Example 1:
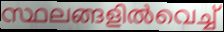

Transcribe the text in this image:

സ്ഥലങ്ങളിൽവെച്ച്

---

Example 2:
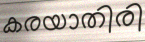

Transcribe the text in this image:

കരയാതിരി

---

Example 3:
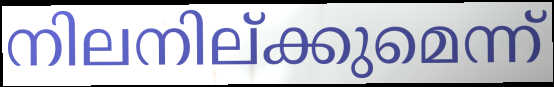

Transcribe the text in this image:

നിലനില്ക്കുമെന്ന്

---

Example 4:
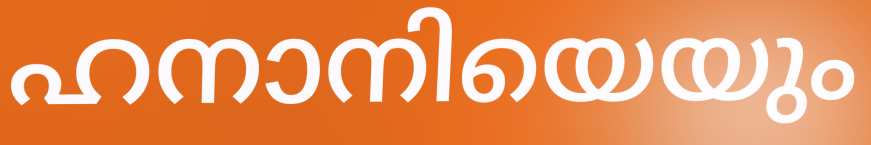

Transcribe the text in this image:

ഹനാനിയെയും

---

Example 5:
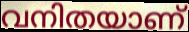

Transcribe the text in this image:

വനിതയാണ്